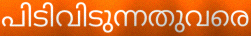
പിടിവിടുന്നതുവരെ